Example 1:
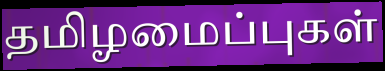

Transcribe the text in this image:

தமிழமைப்புகள்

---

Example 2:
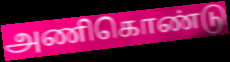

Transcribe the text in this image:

அணிகொண்டு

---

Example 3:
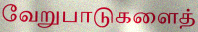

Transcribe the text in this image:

வேறுபாடுகளைத்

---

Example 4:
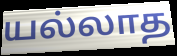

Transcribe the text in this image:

யல்லாத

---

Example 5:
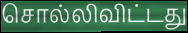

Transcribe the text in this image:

சொல்லிவிட்டது